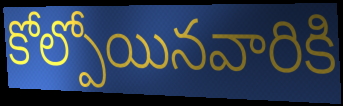
కోల్పోయినవారికి